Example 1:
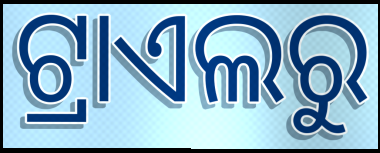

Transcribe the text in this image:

ଟ୍ରାଏଲରୁ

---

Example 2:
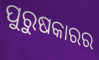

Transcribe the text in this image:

ପୁରୁଷକାରର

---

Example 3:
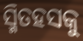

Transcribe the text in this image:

ସ୍ମିତହସକୁ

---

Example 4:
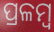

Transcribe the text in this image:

ପ୍ରଳମ୍ବ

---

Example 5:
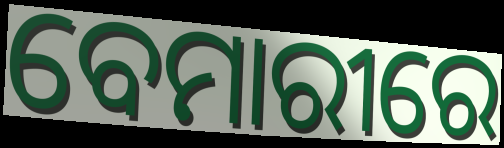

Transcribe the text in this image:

ବେମାରୀରେ